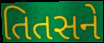
તિતસને